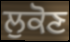
ਲੁਕੋਣ